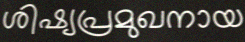
ശിഷ്യപ്രമുഖനായ